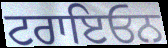
ਟਰਾਇਓਨ